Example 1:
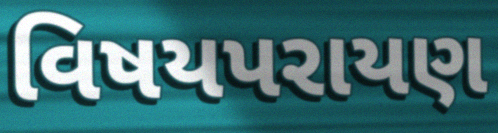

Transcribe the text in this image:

વિષયપરાયણ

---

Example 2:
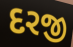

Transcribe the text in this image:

દરજી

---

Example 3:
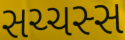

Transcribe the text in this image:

સચ્ચસ્સ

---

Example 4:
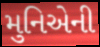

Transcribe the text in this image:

મુનિએની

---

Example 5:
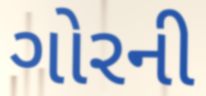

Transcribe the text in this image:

ગોરની